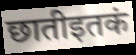
छातीइतकं